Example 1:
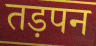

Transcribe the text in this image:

तड़पन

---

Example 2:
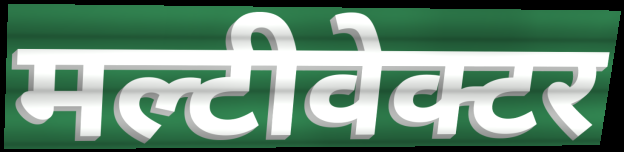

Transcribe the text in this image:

मल्टीवेक्टर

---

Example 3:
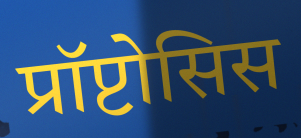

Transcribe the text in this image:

प्रॉप्टोसिस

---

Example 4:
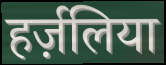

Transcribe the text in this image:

हर्ज़लिया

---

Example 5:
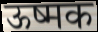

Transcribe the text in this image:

ऊष्मक